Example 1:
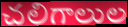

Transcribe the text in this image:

చలిగాలుల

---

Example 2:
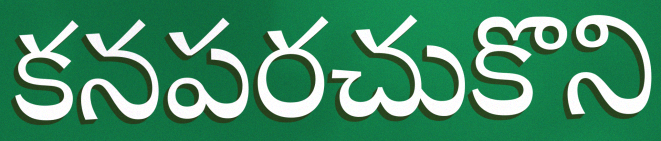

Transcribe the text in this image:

కనపరచుకొని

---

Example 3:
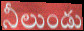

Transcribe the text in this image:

నీలుండు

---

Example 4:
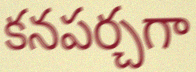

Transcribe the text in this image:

కనపర్చగా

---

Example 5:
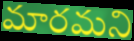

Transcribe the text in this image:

మారమని